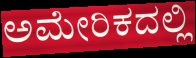
ಅಮೇರಿಕದಲ್ಲಿ